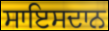
ਸਾਇਸਦਾਨ